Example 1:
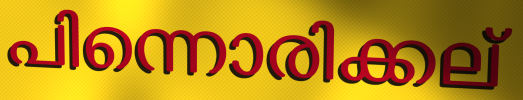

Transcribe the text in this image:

പിന്നൊരിക്കല്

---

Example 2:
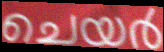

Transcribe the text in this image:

ചെയർ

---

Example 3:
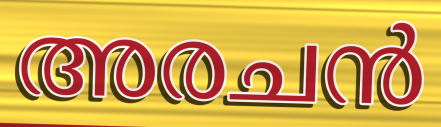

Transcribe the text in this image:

അരചൻ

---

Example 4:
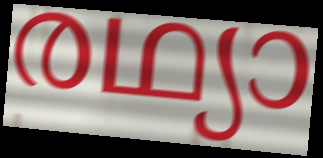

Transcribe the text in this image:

രഥ്യാ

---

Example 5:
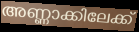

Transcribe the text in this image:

അണ്ണാക്കിലേക്ക്